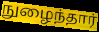
நுழைந்தார்